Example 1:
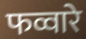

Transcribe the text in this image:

फव्‍वारे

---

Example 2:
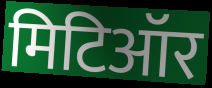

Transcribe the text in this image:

मिटिऑर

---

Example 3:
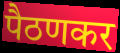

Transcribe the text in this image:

पैठणकर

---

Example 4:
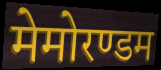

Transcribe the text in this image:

मेमोरण्डम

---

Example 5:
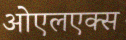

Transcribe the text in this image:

ओएलएक्स